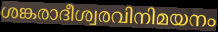
ശങ്കരാദീശ്വരവിനിമയനം